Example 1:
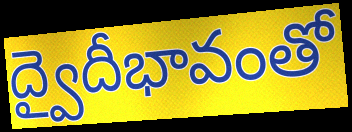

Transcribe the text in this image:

ద్వైదీభావంతో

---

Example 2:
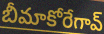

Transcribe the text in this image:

బీమాకోరేగావ్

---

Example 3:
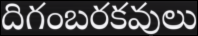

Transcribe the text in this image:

దిగంబరకవులు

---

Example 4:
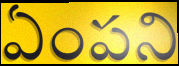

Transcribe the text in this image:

ఏంపని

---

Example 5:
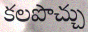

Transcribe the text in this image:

కలపొచ్చు